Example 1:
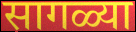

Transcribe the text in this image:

सागळ्या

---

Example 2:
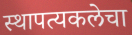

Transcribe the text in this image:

स्थापत्यकलेचा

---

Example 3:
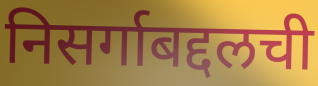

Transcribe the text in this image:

निसर्गाबद्दलची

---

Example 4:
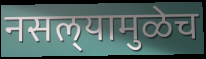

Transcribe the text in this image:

नसल्यामुळेच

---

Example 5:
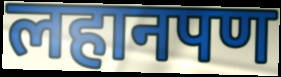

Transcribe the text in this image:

लहानपण